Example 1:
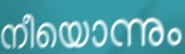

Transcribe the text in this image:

നീയൊന്നും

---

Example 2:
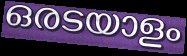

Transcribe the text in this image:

ഒരടയാളം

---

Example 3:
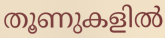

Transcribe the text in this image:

തൂണുകളിൽ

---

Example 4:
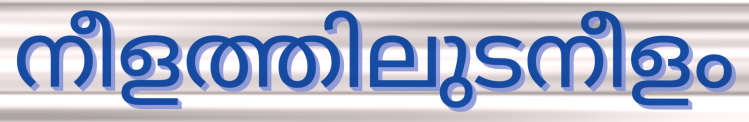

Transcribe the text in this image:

നീളത്തിലുടനീളം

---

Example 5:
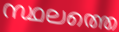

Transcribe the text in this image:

സ്ഥലത്തെ